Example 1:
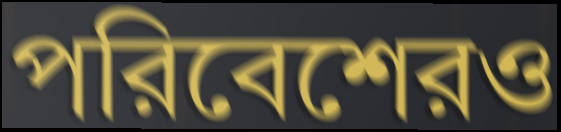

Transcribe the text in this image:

পরিবেশেরও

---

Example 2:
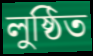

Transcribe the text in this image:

লুষ্ঠিত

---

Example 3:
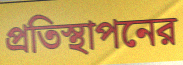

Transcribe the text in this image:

প্রতিস্থাপনের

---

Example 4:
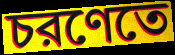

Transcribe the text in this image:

চরণেতে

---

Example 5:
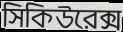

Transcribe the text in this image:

সিকিউরেক্স